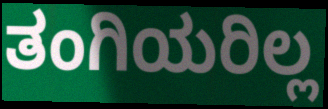
ತಂಗಿಯರಿಲ್ಲ